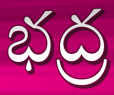
భద్ర